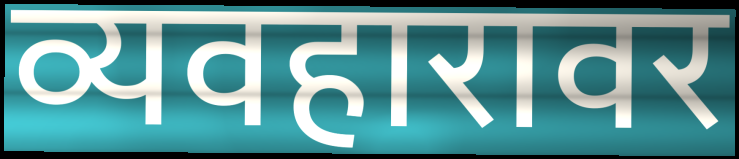
व्यवहारावर